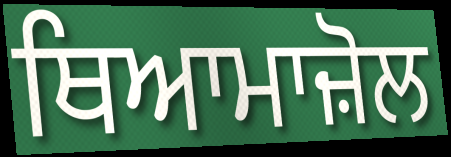
ਥਿਆਮਾਜ਼ੋਲ